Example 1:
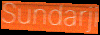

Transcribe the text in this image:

Sundarji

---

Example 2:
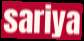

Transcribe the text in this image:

sariya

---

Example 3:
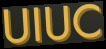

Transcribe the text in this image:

UIUC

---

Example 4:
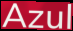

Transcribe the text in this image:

Azul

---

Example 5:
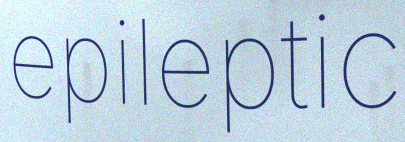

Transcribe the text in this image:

epileptic